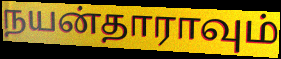
நயன்தாராவும்